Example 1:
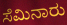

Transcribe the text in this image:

ಸೆಮಿನಾರು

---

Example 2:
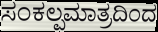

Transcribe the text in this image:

ಸಂಕಲ್ಪಮಾತ್ರದಿಂದ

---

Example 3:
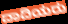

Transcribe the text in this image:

ದಾದಿಯರು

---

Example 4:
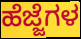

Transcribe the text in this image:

ಹೆಜ್ಜೆಗಳ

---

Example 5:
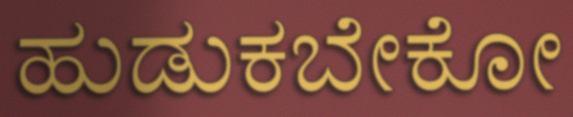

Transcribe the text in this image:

ಹುಡುಕಬೇಕೋ